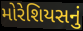
મોરેશિયસનું